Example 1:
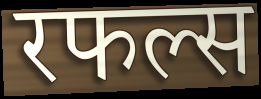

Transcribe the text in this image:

रफल्स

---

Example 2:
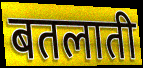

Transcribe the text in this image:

बतलाती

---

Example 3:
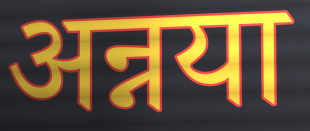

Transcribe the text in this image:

अन्नया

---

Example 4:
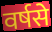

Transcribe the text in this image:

वर्षसे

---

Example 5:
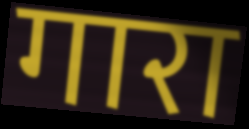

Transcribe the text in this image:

गारा